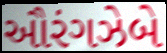
ઔરંગઝેબે